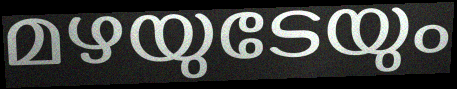
മഴയുടേയും